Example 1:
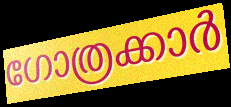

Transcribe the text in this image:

ഗോത്രക്കാർ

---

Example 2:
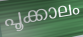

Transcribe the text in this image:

പൂക്കാലം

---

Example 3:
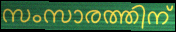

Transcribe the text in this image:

സംസാരത്തിന്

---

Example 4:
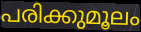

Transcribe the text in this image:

പരിക്കുമൂലം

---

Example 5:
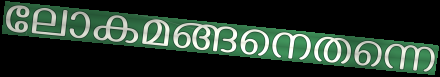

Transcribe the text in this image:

ലോകമങ്ങനെതന്നെ